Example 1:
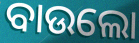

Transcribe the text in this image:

ବାଉଲୋ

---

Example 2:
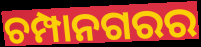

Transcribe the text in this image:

ଚମ୍ପାନଗରର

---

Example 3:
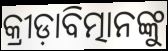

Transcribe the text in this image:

କ୍ରୀଡ଼ାବିତ୍ମାନଙ୍କୁ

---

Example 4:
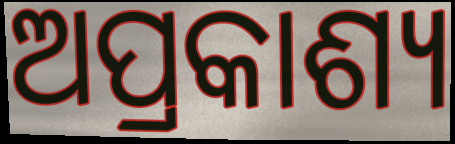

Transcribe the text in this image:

ଅପ୍ରକାଶ୍ୟ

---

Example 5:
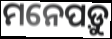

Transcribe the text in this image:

ମନେପଡ଼ୁ